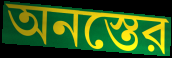
অনস্তের